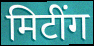
मिटींग